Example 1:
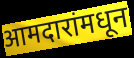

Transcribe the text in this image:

आमदारांमधून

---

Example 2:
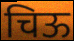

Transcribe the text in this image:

चिऊ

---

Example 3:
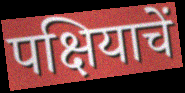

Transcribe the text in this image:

पक्षियाचें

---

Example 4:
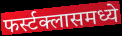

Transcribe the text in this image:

फर्स्टक्लासमध्ये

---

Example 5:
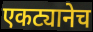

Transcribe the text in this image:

एकट्यानेच